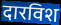
दारविश